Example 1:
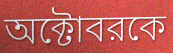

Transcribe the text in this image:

অক্টোবরকে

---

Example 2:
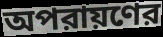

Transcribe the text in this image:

অপরায়ণের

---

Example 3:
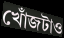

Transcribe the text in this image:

খোঁজটাও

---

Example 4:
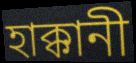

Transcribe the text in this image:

হাক্কানী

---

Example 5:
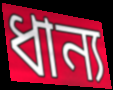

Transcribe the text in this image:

ধান্য